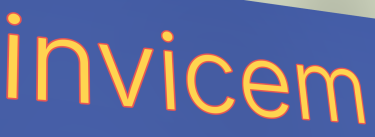
invicem